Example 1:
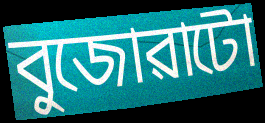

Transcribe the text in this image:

বুজোৱাটো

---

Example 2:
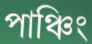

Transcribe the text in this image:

পাঞ্চিং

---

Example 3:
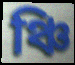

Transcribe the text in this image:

ঞ্চি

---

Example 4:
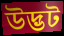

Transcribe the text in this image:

উদ্ভট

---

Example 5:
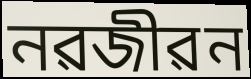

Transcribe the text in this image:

নৱজীৱন